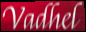
Vadhel